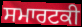
ਸਮਾਰਟਕੀ